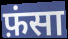
फ़ंसा